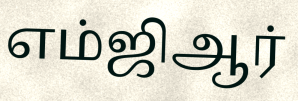
எம்ஜிஆர்